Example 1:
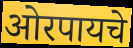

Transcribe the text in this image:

ओरपायचे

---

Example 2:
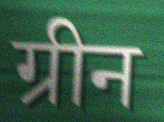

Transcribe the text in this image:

ग्रीन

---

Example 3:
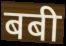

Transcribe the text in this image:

बबी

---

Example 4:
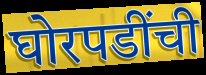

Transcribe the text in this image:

घोरपडींची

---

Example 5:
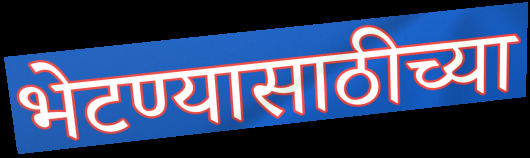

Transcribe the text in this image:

भेटण्यासाठीच्या